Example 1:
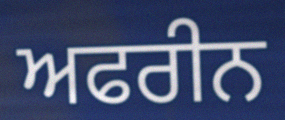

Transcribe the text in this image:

ਅਫਰੀਨ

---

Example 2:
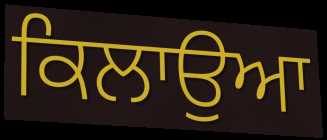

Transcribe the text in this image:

ਕਿਲਾਉਆ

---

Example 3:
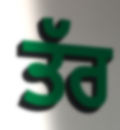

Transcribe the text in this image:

ਤੱਰ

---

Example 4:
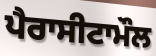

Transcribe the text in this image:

ਪੈਰਾਸੀਟਾਮੌਲ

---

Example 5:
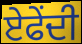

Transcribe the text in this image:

ਏਫੇਂਦੀ